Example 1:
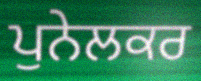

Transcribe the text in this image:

ਪੁਨੇਲਕਰ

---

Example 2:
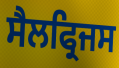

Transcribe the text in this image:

ਸੈਲਫ੍ਰਿਜਸ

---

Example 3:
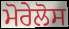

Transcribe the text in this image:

ਮੋਰੇਲੋਸ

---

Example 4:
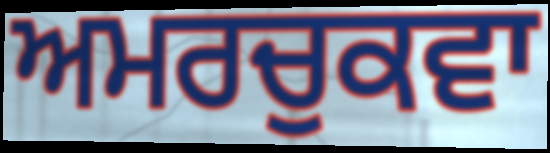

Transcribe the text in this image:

ਅਮਰਚੁਕਵਾ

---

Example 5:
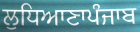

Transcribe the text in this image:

ਲੁਧਿਆਣਾਪੰਜਾਬ